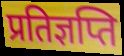
प्रतिज्ञप्ति